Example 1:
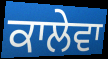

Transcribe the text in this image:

ਕਾਲੇਵਾ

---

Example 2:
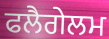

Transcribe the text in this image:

ਫਲੈਗੇਲਮ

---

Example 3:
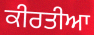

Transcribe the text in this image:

ਕੀਰਤੀਆ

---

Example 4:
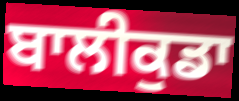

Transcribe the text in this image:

ਬਾਲੀਕੁਡਾ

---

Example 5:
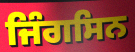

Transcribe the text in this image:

ਜਿੰਗਸਿਨ